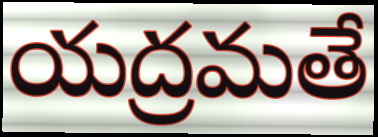
యద్రమతే